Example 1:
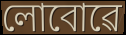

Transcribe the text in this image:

লোবোৱে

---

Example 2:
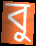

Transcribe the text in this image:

বু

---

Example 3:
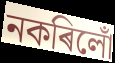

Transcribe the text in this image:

নকৰিলোঁ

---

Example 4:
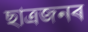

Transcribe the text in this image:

ছাত্ৰজনৰ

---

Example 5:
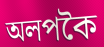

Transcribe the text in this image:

অলপকৈ